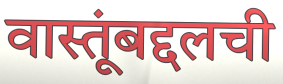
वास्तूंबद्दलची